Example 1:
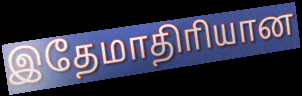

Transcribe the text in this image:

இதேமாதிரியான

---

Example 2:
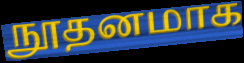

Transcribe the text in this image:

நூதனமாக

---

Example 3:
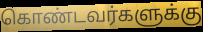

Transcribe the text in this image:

கொண்டவர்களுக்கு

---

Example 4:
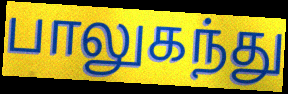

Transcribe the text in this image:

பாலுகந்து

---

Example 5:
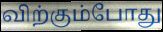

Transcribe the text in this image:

விற்கும்போது